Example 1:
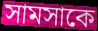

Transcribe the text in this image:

সামসাকে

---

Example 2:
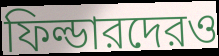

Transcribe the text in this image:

ফিল্ডারদেরও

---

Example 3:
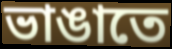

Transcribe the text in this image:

ভাঙাতে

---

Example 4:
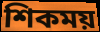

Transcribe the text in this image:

শিকময়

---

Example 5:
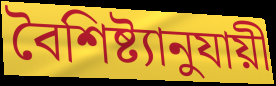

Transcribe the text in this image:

বৈশিষ্ট্যানুযায়ী